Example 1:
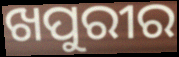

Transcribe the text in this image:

ଖପୁରୀର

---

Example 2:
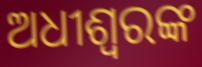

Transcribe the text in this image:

ଅଧୀଶ୍ୱରଙ୍କ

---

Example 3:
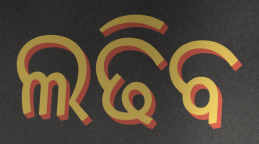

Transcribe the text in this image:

ଲଢିବ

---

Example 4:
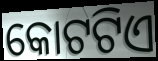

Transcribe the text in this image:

କୋଟଟିଏ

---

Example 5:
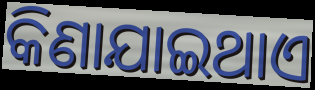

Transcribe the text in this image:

କିଣାଯାଇଥାଏ